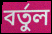
বর্তুল